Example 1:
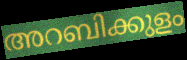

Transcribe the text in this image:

അറബിക്കുളം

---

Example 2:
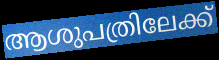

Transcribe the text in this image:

ആശുപത്രിലേക്ക്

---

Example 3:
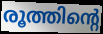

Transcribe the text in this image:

രൂത്തിന്റെ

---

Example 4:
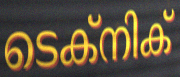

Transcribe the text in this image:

ടെക്നിക്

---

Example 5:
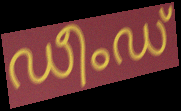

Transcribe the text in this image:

ഡീംഡ്